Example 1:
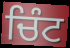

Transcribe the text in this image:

ਚਿੰਟ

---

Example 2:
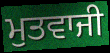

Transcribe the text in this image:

ਮੁਤਵਾਜੀ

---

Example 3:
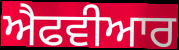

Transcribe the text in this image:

ਐਫਵੀਆਰ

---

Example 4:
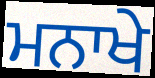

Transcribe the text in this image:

ਮਨਾਖੇ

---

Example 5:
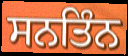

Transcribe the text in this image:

ਸਨਤਿੰਨ